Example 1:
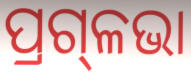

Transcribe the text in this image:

ପ୍ରଗ୍‌ଳଭା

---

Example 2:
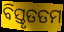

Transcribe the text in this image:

ବିସ୍ତୃତତମ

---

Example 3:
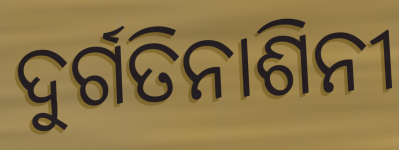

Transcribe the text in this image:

ଦୁର୍ଗତିନାଶିନୀ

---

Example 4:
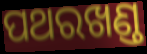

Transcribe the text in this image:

ପଥରଖଣ୍ଡ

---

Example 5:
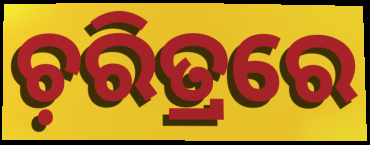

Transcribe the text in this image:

ଚ଼ରିତ୍ରରେ